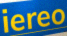
iereo